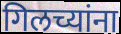
गिलच्यांना